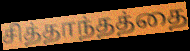
சித்தாந்தத்தை